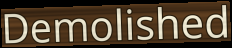
Demolished